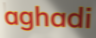
aghadi